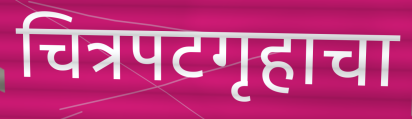
चित्रपटगृहाचा